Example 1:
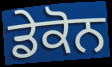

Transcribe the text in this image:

ਡੇਕੋਨ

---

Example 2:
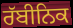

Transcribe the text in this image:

ਰੱਬੀਨਿਕ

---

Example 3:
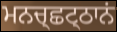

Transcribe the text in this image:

ਮਨਚ੍ਛਟ੍ਠਾਨਂ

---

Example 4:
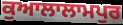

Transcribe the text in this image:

ਕੁਆਲਾਲਾਮਪੁਰ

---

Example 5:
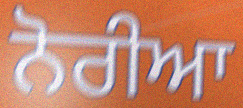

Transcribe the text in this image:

ਨੋਰੀਆ